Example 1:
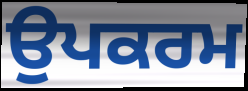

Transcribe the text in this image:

ਉਪਕਰਮ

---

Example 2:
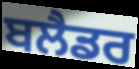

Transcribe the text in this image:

ਬਲੈਡਰ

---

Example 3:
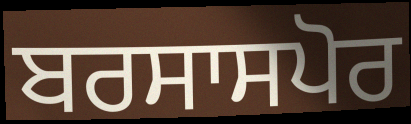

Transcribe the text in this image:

ਬਰਸਾਸਪੋਰ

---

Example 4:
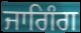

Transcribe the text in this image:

ਜਾਗਿੰਗ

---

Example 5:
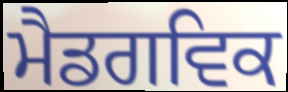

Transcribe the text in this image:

ਮੈਡਗਵਿਕ